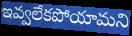
ఇవ్వలేకపోయామని